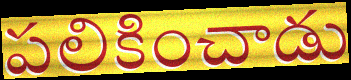
పలికించాడు